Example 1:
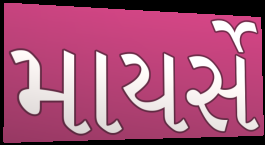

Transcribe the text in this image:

માયર્સે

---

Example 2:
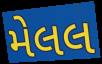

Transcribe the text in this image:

મેલલ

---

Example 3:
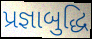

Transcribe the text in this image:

પ્રજ્ઞાબુદ્ધિ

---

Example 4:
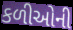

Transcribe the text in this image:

કળીઓની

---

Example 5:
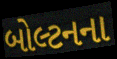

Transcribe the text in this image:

બોલ્ટનના